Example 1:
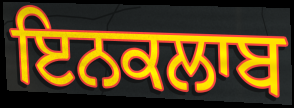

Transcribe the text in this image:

ਇਨਕਲਾਬ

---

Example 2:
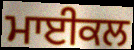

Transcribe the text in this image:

ਮਾਈਕਲ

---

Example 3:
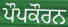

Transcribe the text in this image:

ਪੌਪਕੌਰਨ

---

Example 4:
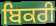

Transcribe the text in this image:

ਬਿਕਰੀ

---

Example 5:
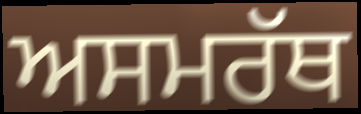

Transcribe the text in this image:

ਅਸਮਰੱਥ